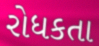
રોધકતા